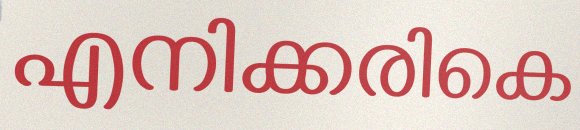
എനിക്കരികെ